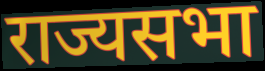
राज्‍यसभा